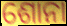
ଶୋନା